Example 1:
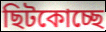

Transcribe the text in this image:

ছিটকোচ্ছে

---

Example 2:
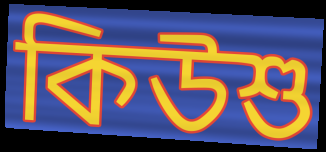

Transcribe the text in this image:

কিউশু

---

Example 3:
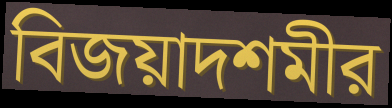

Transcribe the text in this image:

বিজয়াদশমীর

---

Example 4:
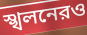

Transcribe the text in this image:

স্খলনেরও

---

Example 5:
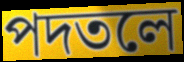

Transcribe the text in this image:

পদতলে